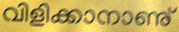
വിളിക്കാനാണു്